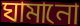
ঘামানো